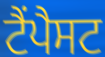
ਟੈਂਪੈਸਟ